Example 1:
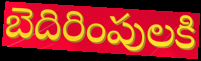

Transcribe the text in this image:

బెదిరింపులకి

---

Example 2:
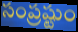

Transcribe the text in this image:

సంప్రష్టుం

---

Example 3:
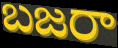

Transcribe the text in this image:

బజరా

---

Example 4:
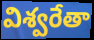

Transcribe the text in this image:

విశ్వరేతా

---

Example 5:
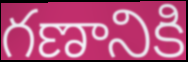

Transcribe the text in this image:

గణానికి